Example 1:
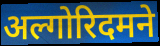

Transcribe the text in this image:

अल्गोरिदमने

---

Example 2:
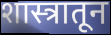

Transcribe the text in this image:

शास्त्रातून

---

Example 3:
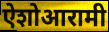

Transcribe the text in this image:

ऐशोआरामी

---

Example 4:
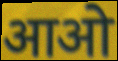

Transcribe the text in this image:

आओ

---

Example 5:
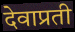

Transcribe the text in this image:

देवाप्रती